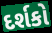
દર્શકો